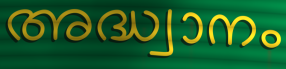
അദ്ധ്വാനം